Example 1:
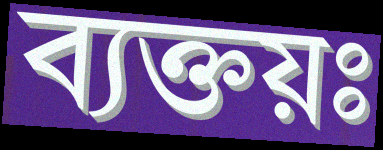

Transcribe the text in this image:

ব্যক্তয়ঃ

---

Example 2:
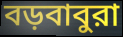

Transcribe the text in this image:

বড়বাবুরা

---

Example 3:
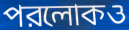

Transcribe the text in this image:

পরলোকও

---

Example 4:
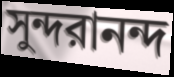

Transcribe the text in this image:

সুন্দরানন্দ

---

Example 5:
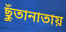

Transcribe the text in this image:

ছুঁতানাতায়